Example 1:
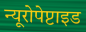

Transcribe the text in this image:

न्यूरोपेप्टाइड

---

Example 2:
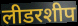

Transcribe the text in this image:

लीडरशीप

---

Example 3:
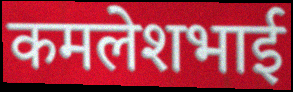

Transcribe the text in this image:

कमलेशभाई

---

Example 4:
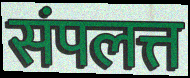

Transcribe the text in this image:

संपलत्त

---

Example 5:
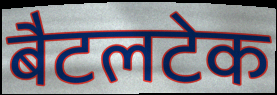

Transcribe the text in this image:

बैटलटेक